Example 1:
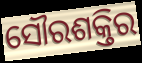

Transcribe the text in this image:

ସୌରଶକ୍ତିର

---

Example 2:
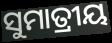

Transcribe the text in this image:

ସୁମାତ୍ରୀୟ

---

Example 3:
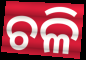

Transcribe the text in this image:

ଚଳି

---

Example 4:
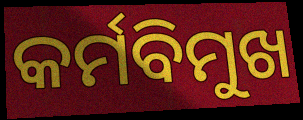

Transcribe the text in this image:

କର୍ମବିମୁଖ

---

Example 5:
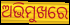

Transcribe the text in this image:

ଅଭିମୁଖରେ